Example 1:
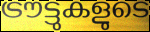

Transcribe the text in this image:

ട്രൗട്ടുകളുടെ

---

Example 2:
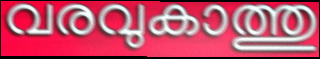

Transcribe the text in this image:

വരവുകാത്തു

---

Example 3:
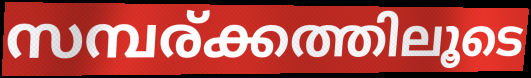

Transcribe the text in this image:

സമ്പര്ക്കത്തിലൂടെ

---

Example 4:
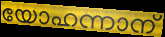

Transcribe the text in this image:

യോഹന്നാന്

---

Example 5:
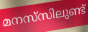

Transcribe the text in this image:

മനസ്‌സിലുണ്ട്